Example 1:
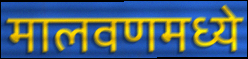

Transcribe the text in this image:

मालवणमध्ये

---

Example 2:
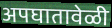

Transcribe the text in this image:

अपघातावेळी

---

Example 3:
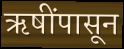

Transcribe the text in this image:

ऋषींपासून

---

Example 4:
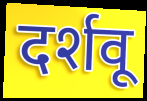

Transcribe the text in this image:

दर्शवू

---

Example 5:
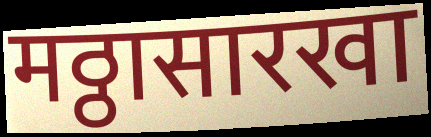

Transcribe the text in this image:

मठ्ठासारखा